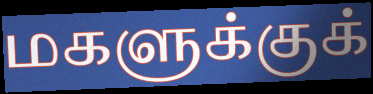
மகளுக்குக்